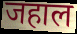
जहाल